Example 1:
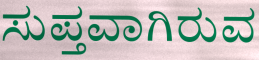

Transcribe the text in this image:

ಸುಪ್ತವಾಗಿರುವ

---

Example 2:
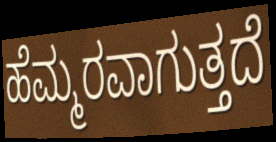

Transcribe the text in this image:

ಹೆಮ್ಮರವಾಗುತ್ತದೆ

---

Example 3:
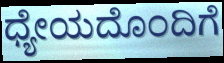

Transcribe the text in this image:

ಧ್ಯೇಯದೊಂದಿಗೆ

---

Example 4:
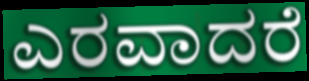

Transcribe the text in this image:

ಎರವಾದರೆ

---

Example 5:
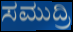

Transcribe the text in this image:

ಸಮುದ್ರಿ